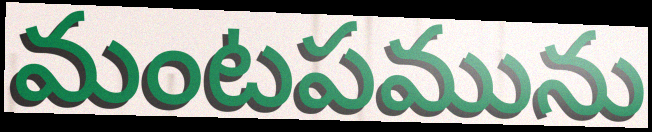
మంటపమును